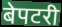
बेपटरी